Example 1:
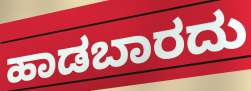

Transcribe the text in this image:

ಹಾಡಬಾರದು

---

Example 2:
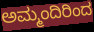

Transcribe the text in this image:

ಅಮ್ಮಂದಿರಿಂದ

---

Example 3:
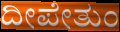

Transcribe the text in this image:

ದೀಪೇತುಂ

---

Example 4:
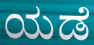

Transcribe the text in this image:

ಯಡೆ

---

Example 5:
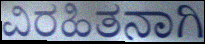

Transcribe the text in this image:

ವಿರಹಿತನಾಗಿ